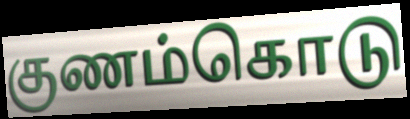
குணம்கொடு